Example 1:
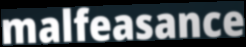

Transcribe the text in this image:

malfeasance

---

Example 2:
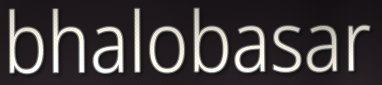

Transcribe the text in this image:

bhalobasar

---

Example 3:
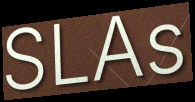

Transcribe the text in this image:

SLAs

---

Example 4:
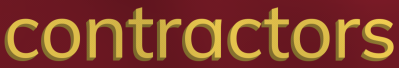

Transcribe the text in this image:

contractors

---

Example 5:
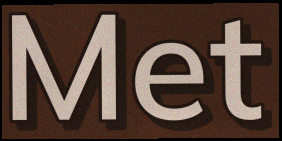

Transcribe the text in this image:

Met